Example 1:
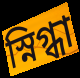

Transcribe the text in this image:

স্নিগ্ধা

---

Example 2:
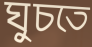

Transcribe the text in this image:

ঘুচতে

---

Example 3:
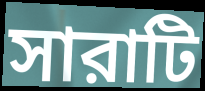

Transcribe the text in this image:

সারাটি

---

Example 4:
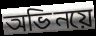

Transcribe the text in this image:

অভিনয়ে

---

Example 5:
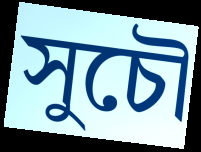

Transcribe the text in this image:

সুচৌ